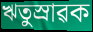
ঋতুস্ৰাৱক